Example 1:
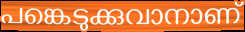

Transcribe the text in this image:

പങ്കെടുക്കുവാനാണ്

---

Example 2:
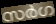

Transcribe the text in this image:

സർഗ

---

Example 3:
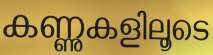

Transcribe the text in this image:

കണ്ണുകളിലൂടെ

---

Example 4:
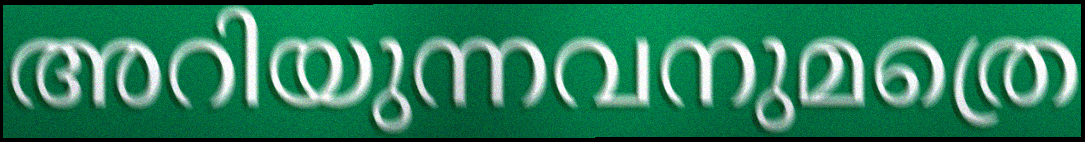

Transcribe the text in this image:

അറിയുന്നവനുമത്രെ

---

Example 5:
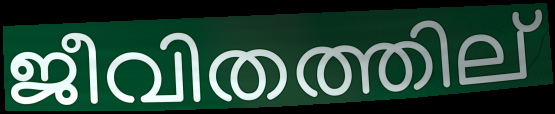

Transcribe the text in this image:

ജീവിതത്തില്